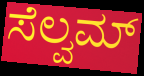
ಸೆಲ್ವಮ್